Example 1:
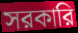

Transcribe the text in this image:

সরকারি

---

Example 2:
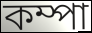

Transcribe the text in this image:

কম্পা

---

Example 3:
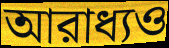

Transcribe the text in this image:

আরাধ্যও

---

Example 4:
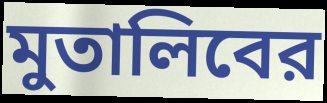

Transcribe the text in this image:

মুতালিবের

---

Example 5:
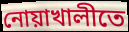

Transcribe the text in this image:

নোয়াখালীতে